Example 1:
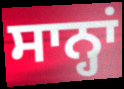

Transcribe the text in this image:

ਸਾਨ੍ਹਾਂ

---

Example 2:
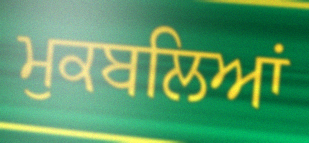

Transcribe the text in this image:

ਮੁਕਬਲਿਆਂ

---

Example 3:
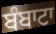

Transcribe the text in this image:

ਬੰਬਾਟਾ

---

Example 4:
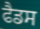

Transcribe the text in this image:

ਫੈਡਸ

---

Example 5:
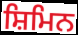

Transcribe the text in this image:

ਸ਼ਿਮਿਨ